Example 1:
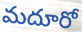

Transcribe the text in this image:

మదూరో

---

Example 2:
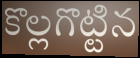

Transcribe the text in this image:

కొల్లగొట్టిన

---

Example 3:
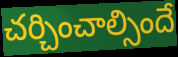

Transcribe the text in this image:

చర్చించాల్సిందే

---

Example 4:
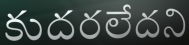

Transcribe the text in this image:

కుదరలేదని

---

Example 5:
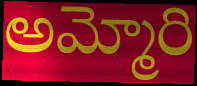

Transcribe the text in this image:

అమ్మోరి